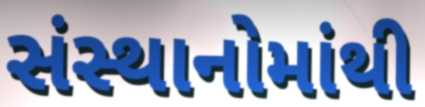
સંસ્થાનોમાંથી